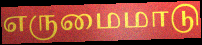
எருமைமாடு